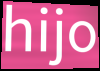
hijo